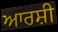
ਆਰਸ਼ੀ